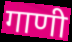
गाणी